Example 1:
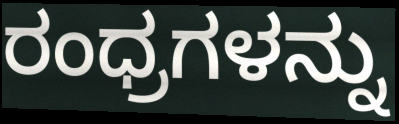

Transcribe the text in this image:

ರಂಧ್ರಗಳನ್ನು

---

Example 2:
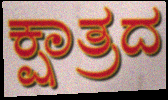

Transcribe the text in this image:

ಕ್ಷಾತ್ರದ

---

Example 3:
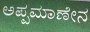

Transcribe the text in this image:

ಅಪ್ಪಮಾಣೇನ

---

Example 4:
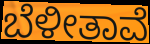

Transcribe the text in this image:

ಬೆಳೀತಾವೆ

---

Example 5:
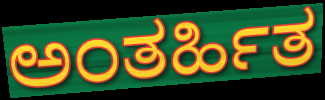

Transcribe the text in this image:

ಅಂತರ್ಹಿತ